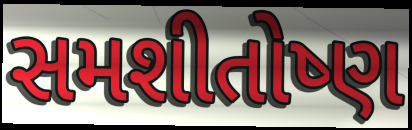
સમશીતોષ્ણ